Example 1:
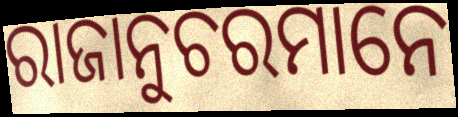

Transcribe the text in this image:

ରାଜାନୁଚରମାନେ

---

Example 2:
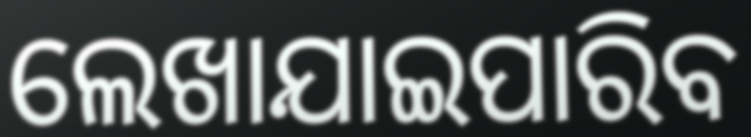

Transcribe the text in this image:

ଲେଖାଯାଇପାରିବ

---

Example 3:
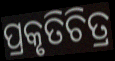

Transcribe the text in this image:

ପ୍ରକୃତିଚିତ୍ର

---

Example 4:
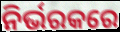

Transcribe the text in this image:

ନିର୍ଭରକରେ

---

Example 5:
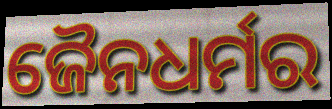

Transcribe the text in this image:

ଜୈନଧର୍ମର